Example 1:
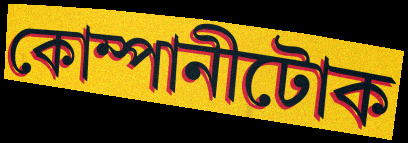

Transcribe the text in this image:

কোম্পানীটোক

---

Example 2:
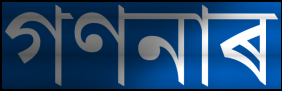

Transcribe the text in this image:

গণনাৰ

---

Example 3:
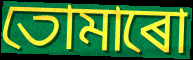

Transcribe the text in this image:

তোমাৰো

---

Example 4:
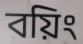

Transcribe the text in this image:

বয়িং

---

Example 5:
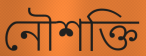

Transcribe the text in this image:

নৌশক্তি